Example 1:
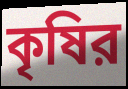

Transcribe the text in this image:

কৃষির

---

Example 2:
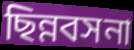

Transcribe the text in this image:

ছিন্নবসনা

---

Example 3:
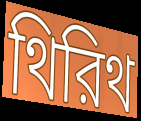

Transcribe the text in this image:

থিরিথ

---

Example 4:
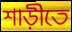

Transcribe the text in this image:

শাড়ীতে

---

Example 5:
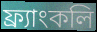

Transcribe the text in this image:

ফ্র্যাংকলি